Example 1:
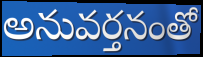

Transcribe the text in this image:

అనువర్తనంతో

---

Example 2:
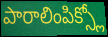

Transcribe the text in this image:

పారాలింపిక్స్లో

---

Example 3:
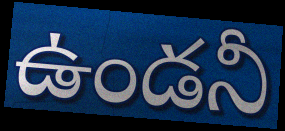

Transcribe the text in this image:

ఉండనీ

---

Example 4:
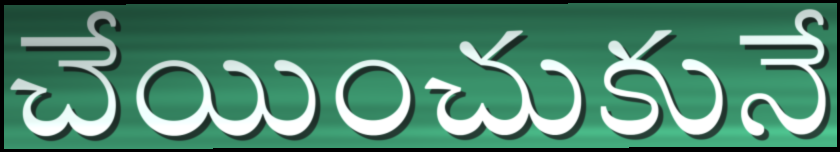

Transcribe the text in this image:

చేయించుకునే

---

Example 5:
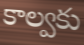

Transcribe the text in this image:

కాల్వకు